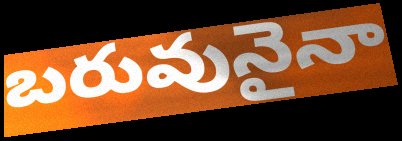
బరువునైనా